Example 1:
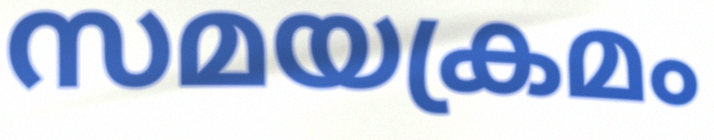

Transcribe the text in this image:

സമയക്രമം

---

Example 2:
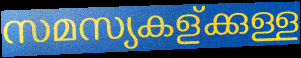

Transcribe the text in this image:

സമസ്യകള്ക്കുള്ള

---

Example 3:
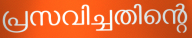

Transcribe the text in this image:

പ്രസവിച്ചതിന്റെ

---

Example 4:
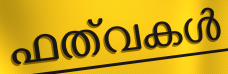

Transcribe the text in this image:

ഫത്‌വകൾ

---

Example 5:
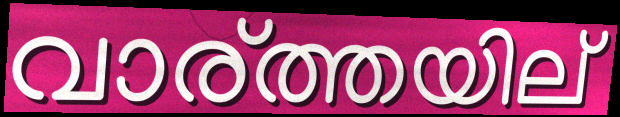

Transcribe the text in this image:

വാര്ത്തയില്